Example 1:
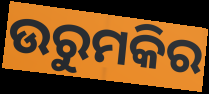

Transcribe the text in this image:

ଉରୁମକିର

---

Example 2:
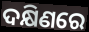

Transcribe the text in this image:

ଦକ୍ଷିଣରେ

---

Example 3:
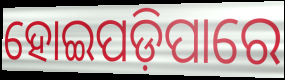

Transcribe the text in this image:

ହୋଇପଡ଼ିପାରେ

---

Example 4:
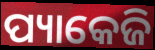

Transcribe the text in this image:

ପ୍ୟାକେଜି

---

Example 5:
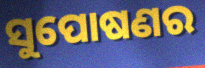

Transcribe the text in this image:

ସୁପୋଷଣର